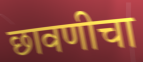
छावणीचा